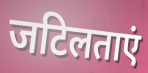
जटिलताएं